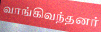
வாங்கிவந்தனர்